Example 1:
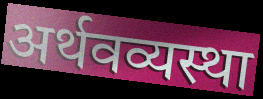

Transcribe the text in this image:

अर्थवव्यस्था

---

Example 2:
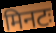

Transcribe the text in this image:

मिनटः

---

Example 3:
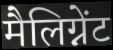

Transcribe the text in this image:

मैलिग्नेंट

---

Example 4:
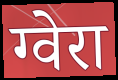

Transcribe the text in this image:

ग्वेरा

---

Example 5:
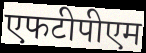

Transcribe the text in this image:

एफटीपीएम